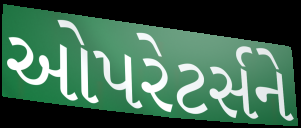
ઓપરેટર્સને